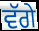
ਵੱਗੇ